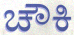
ಚೌಕಿ